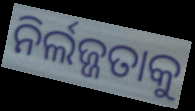
ନିର୍ଲଜ୍ଜତାକୁ